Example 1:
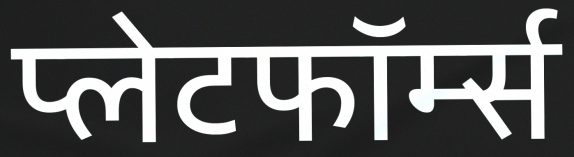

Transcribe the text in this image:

प्लेटफॉर्म्स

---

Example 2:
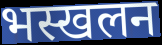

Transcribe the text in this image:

भस्खलन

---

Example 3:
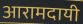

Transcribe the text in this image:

आरामदायी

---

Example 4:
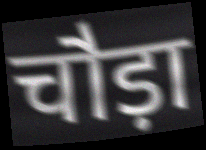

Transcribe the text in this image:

चौड़ा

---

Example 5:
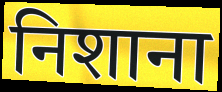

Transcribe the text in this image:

निशाना